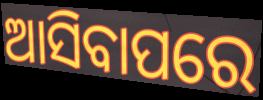
ଆସିବାପରେ